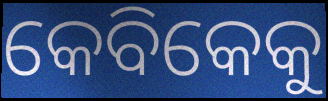
କେବିକେକୁ